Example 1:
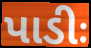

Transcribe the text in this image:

પાડીઃ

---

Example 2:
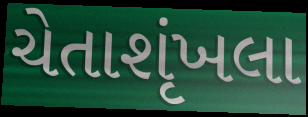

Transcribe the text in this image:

ચેતાશૃંખલા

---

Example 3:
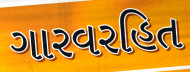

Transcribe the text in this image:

ગારવરહિત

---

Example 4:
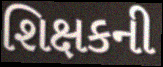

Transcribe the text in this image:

શિક્ષકની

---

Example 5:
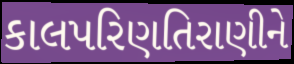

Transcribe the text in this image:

કાલપરિણતિરાણીને